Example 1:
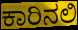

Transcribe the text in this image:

ಕಾರಿನಲಿ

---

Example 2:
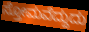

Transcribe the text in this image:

ಸ್ತೋಮವೆದ್ದುದು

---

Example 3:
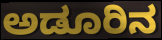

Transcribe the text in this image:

ಅಡೂರಿನ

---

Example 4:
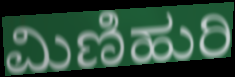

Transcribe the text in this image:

ಮಿಣಿಹುರಿ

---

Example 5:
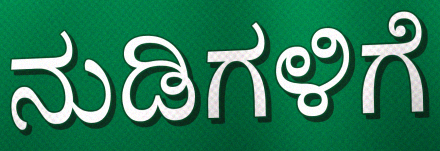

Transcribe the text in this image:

ನುಡಿಗಳಿಗೆ